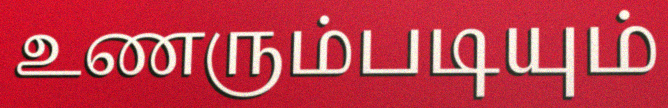
உணரும்படியும்